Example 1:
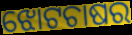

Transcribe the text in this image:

ଝୋଟଚାଷର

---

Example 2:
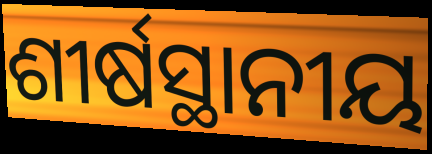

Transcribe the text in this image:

ଶୀର୍ଷସ୍ଥାନୀୟ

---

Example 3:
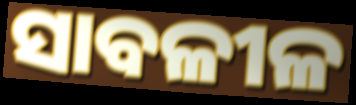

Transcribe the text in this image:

ସାବଳୀଳ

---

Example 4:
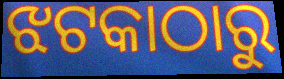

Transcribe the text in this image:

ଝଟକାଠାରୁ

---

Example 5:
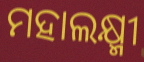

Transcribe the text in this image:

ମହାଲକ୍ଷ୍ମୀ